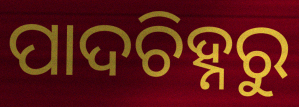
ପାଦଚିହ୍ନରୁ